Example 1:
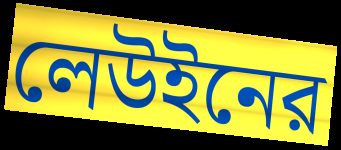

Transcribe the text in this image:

লেউইনের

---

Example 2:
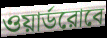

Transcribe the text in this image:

ওয়ার্ডরোবে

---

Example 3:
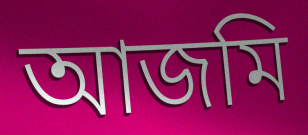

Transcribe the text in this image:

আজমি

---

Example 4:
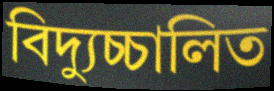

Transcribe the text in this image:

বিদ্যুচ্চালিত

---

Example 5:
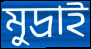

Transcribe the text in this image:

মুদ্রাই